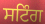
ਸਟਿੰਗ